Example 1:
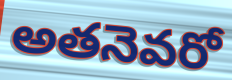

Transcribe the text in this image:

అతనెవరో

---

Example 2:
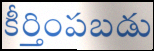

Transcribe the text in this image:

కీర్తింపబడు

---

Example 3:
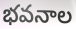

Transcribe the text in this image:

భవనాల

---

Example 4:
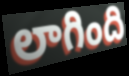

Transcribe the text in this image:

లాగింది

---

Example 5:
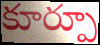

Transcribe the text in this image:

కూర్పూ